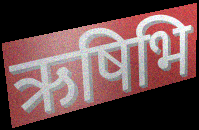
ऋषिभि